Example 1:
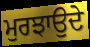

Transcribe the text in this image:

ਮੁਰਝਾਉਦੇ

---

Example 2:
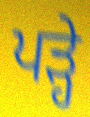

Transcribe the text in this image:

ਪਡ਼੍ਹੇ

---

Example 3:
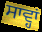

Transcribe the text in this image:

ਸਾਵ੍ਹਾਂ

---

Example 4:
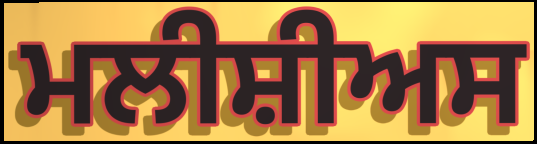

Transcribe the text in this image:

ਮਲੀਸ਼ੀਅਸ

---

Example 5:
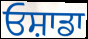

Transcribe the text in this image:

ਓਸ਼ਾਡਾ